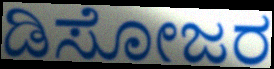
ಡಿಸೋಜರ